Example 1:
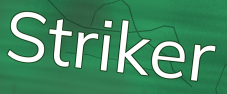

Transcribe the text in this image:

Striker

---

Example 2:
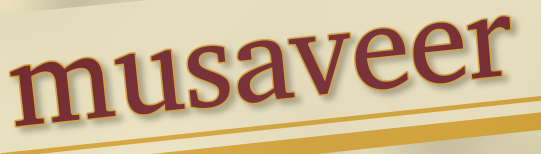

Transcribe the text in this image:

musaveer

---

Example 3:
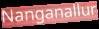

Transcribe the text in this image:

Nanganallur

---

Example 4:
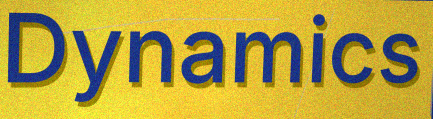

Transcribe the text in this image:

Dynamics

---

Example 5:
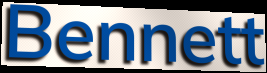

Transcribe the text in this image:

Bennett